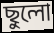
ছুলো